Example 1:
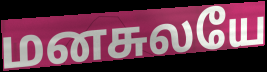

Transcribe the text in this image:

மனசுலயே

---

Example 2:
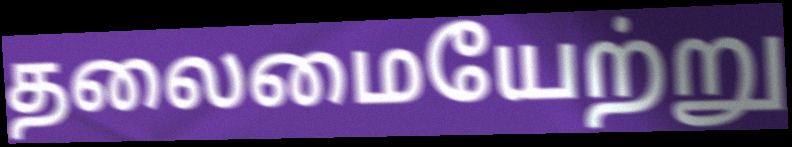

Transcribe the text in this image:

தலைமையேற்று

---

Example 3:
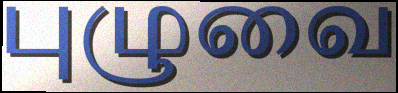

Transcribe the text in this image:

புழுவை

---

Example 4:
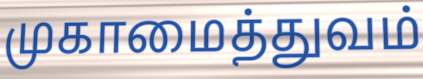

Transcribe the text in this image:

முகாமைத்துவம்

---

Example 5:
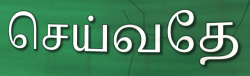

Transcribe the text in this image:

செய்வதே